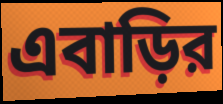
এবাড়ির